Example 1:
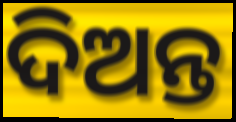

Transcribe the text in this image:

ଦିଅନ୍ତ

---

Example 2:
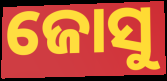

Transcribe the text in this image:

ଜୋସୁ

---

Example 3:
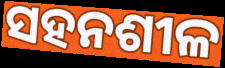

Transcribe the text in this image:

ସହନଶୀଳ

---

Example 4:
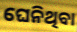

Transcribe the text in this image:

ଘେନିଥିବା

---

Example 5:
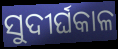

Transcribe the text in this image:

ସୁଦୀର୍ଘକାଳ